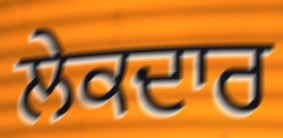
ਲੇਕਦਾਰ